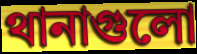
থানাগুলো